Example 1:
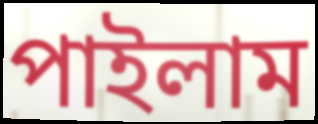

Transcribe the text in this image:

পাইলাম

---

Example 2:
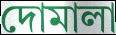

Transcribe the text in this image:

দোমালা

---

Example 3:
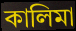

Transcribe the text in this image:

কালিমা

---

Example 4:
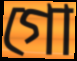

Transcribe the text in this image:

গো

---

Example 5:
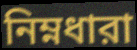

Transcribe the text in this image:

নিম্নধারা